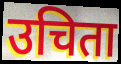
उचिता